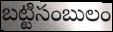
బట్టిసంబులం